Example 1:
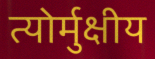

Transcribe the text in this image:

त्योर्मुक्षीय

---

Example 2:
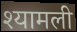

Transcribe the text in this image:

श्यामली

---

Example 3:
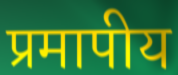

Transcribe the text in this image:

प्रमापीय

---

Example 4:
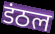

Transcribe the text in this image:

डंठल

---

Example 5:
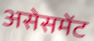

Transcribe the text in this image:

असेसमेंट